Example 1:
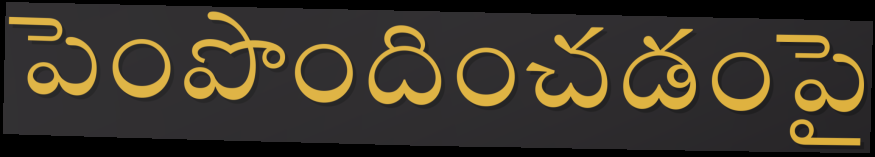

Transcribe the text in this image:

పెంపొందించడంపై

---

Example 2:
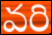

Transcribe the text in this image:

వరి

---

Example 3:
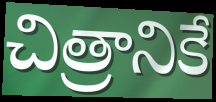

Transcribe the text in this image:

చిత్రానికే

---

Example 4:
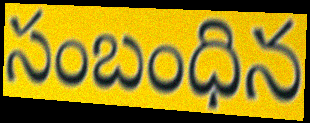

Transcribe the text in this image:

సంబంధిన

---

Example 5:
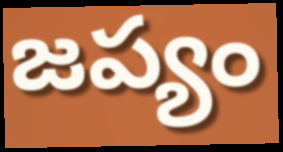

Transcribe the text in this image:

జప్యం